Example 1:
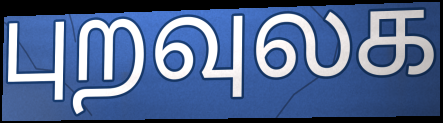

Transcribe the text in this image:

புறவுலக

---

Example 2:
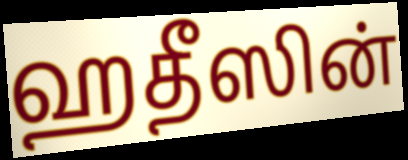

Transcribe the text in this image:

ஹதீஸின்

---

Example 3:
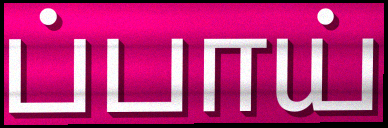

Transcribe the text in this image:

ப்பாய்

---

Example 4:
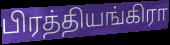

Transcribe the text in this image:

பிரத்தியங்கிரா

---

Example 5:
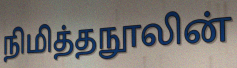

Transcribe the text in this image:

நிமித்தநூலின்